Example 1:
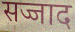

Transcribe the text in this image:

सज्जाद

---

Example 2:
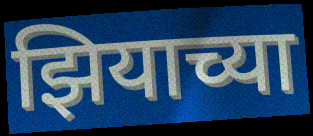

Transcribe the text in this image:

झियाच्या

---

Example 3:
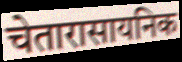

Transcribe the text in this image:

चेतारासायनिक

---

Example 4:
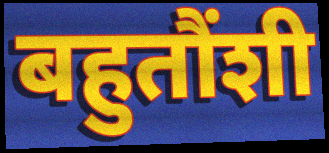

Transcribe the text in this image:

बहुतौंशी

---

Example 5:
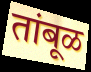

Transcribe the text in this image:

तांबूळ